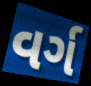
વર્ગ